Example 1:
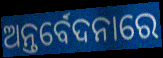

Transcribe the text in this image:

ଅନ୍ତର୍ବେଦନାରେ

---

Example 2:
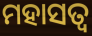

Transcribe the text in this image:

ମହାସତ୍ୱ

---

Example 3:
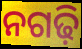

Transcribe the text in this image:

ନଗଢ଼ି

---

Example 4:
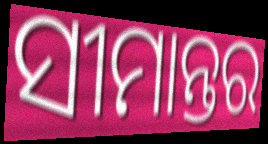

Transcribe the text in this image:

ସୀମାନ୍ତର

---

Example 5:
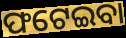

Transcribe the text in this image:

ଫଟେଇବା